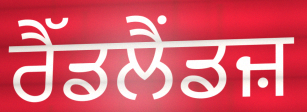
ਰੈੱਡਲੈਂਡਜ਼